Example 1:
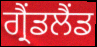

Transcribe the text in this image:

ਗ੍ਰੈਂਡਲੈਂਡ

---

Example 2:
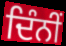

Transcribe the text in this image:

ਦਿੰਨੀਂ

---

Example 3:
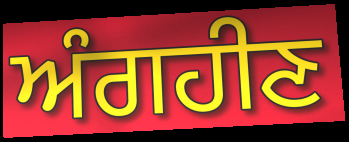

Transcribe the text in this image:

ਅੰਗਹੀਣ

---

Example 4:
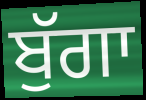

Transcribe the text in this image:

ਬੁੱਗਾ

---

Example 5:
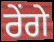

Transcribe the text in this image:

ਰੇਂਗੇ